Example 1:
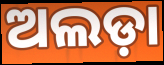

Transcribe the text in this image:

ଅଲଡ଼ା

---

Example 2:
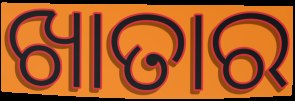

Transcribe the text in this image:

ଖାତାର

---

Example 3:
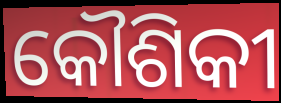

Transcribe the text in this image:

କୌଶିକୀ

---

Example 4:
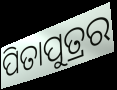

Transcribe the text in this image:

ପିତାପୁତ୍ରର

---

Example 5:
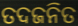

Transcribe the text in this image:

ତଦଜନିତ